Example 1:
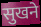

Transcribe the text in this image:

सुखने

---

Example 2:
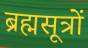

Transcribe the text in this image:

ब्रह्मसूत्रों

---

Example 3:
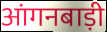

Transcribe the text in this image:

आंगनबाड़ी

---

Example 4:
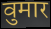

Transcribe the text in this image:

वुमार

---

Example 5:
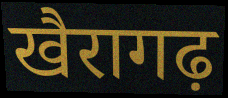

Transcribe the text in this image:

खैरागढ़